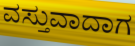
ವಸ್ತುವಾದಾಗ